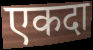
एकदा